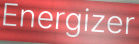
Energizer